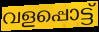
വളപ്പൊട്ട്